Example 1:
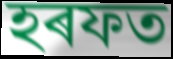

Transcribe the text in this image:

হৰফত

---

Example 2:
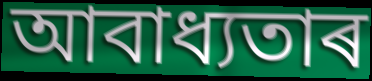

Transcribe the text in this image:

আবাধ্যতাৰ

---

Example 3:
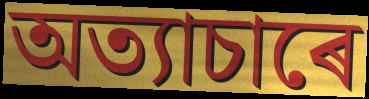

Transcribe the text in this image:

অত্যাচাৰে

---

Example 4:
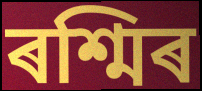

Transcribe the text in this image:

ৰশ্মিৰ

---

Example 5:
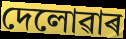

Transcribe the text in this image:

দেলোৱাৰ